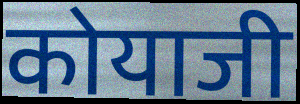
कोयाजी